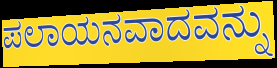
ಪಲಾಯನವಾದವನ್ನು